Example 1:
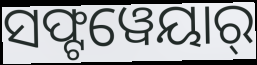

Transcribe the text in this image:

ସଫ୍ଟୱେୟାର୍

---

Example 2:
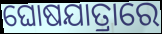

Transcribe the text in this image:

ଘୋଷଯାତ୍ରାରେ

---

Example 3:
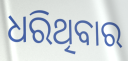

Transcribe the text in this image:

ଧରିଥିବାର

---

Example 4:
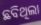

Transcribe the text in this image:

ଛବିଥିଲା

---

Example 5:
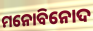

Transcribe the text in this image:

ମନୋବିନୋଦ